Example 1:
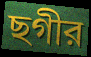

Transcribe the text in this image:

ছগীর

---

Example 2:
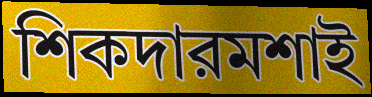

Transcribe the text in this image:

শিকদারমশাই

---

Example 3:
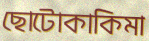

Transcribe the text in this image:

ছোটোকাকিমা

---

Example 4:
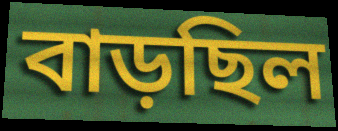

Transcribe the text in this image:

বাড়ছিল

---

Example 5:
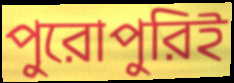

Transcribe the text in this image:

পুরোপুরিই